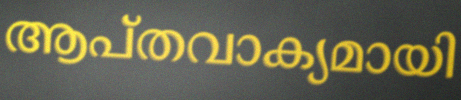
ആപ്തവാക്യമായി